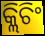
କ୍ଲିଚିଂ